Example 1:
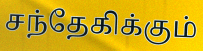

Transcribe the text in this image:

சந்தேகிக்கும்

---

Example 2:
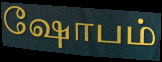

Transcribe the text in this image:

ஷோபம்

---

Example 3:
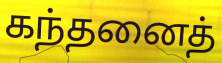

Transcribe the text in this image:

கந்தனைத்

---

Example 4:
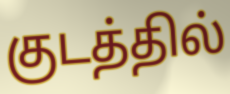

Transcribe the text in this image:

குடத்தில்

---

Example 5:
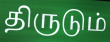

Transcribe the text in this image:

திருடும்